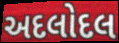
અદલોદલ